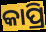
କାପ୍ରି